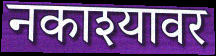
नकाश्यावर